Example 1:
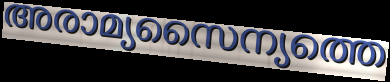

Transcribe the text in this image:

അരാമ്യസൈന്യത്തെ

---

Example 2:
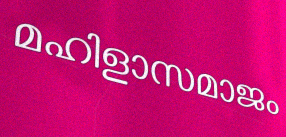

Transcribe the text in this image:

മഹിളാസമാജം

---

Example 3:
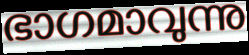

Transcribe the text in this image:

ഭാഗമാവുന്നു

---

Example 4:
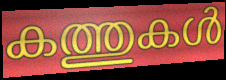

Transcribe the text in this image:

കത്തുകൾ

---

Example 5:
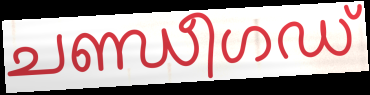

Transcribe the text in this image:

ചണ്ഡീഗഡ്